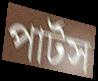
পার্টস